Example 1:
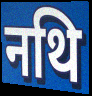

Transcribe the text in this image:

नथि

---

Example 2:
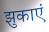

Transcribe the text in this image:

झुकाएं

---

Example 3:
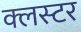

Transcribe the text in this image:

क्‍लस्‍टर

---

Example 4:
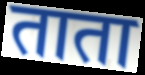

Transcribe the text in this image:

ताता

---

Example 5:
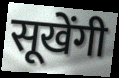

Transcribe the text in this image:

सूखेंगी